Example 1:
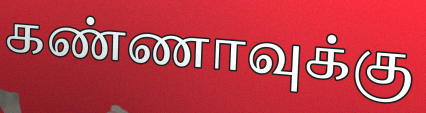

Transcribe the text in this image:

கண்ணாவுக்கு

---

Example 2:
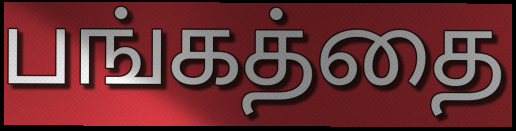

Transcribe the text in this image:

பங்கத்தை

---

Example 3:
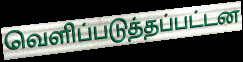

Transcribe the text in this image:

வெளிப்படுத்தப்பட்டன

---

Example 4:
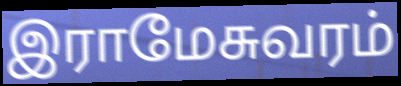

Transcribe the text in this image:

இராமேசுவரம்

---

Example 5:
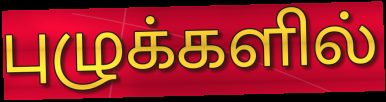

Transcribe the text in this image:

புழுக்களில்